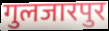
गुलजारपुर